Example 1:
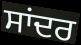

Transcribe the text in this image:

ਸਾਂਦਰ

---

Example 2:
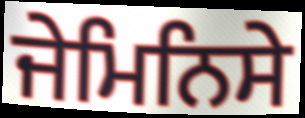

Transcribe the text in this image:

ਜੇਮਿਨਿਸੇ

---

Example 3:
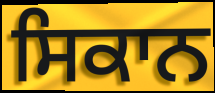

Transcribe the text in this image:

ਸਿਕਾਨ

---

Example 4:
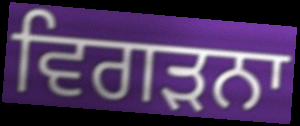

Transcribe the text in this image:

ਵਿਗੜਨਾ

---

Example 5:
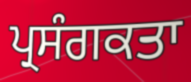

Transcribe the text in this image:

ਪ੍ਰਸੰਗਕਤਾ